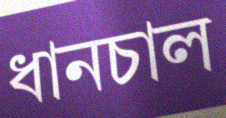
ধানচাল